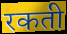
रकती